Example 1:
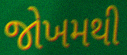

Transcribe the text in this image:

જોખમથી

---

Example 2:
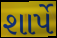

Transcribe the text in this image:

શાર્પે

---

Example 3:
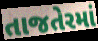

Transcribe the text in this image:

તાજતેરમાં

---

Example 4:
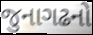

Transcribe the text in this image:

જુનાગઢનો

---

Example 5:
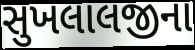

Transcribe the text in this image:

સુખલાલજીના